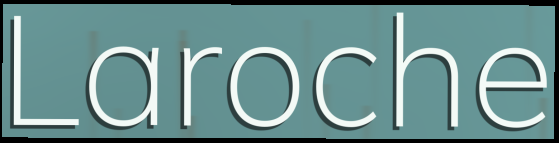
Laroche